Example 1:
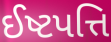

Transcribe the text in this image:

ઈષ્ટપત્તિ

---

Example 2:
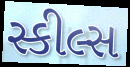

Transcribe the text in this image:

સ્કીલ્સ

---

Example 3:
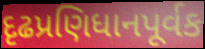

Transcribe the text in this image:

દૃઢપ્રણિધાનપૂર્વક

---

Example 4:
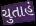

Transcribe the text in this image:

ચુતાહં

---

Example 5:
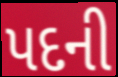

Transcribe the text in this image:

પદની